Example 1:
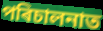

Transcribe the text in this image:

পৰিচালনাত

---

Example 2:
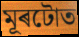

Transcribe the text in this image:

মূৰটোত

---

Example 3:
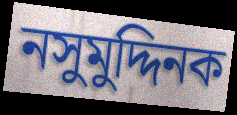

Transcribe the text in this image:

নসুমুদ্দিনক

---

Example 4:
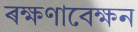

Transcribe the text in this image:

ৰক্ষণাবেক্ষন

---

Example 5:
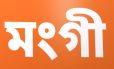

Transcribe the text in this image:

মংগী